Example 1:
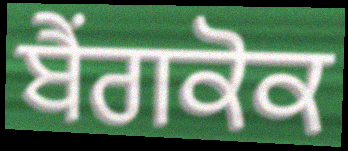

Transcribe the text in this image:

ਬੈਂਗਕੋਕ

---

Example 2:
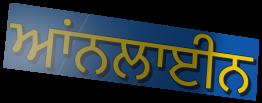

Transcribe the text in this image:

ਆਂਨਲਾਈਨ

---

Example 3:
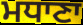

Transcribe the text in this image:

ਮਧਾਣਾ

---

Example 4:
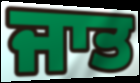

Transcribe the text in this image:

ਜਾਤ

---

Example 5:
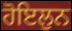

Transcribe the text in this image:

ਹੋਇਲੁਨ